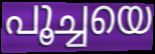
പൂച്ചയെ